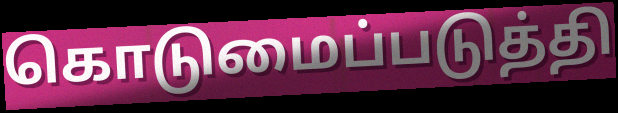
கொடுமைப்படுத்தி